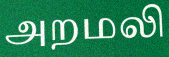
அறமலி